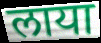
लाया